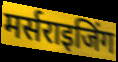
मर्सराइजिंग